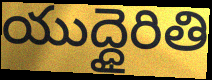
యుద్ధైరితి